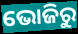
ଭୋଜିରୁ